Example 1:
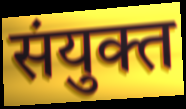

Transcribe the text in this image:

संयुक्त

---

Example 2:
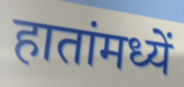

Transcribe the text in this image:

हातांमध्यें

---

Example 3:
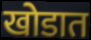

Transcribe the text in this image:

खोडात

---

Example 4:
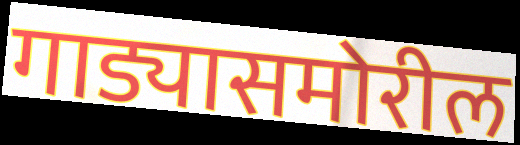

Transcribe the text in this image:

गाड्यासमोरील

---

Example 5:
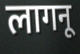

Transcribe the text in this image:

लागनू